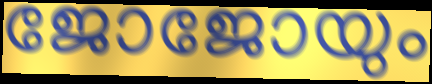
ജോജോയും